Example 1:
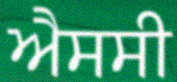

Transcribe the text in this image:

ਐਸਸੀ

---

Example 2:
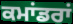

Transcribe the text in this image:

ਕਮਾਂਡਰਾਂ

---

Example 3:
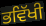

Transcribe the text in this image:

ਭਵਿੱਖੀ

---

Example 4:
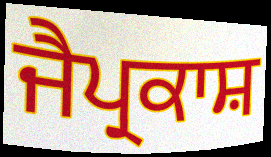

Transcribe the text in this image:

ਜੈਪ੍ਰਕਾਸ਼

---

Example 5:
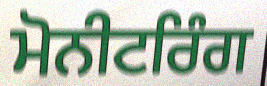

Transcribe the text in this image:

ਮੋਨੀਟਰਿੰਗ